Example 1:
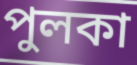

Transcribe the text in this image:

পুলকা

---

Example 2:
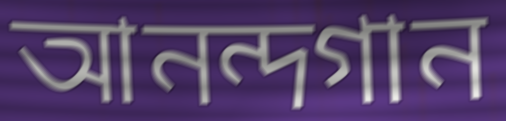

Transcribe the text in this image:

আনন্দগান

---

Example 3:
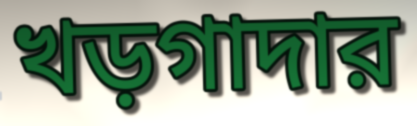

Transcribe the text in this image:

খড়গাদার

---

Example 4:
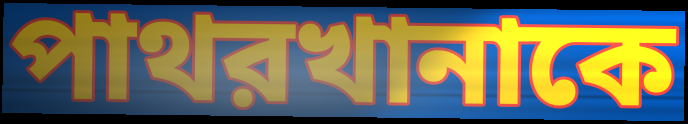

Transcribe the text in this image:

পাথরখানাকে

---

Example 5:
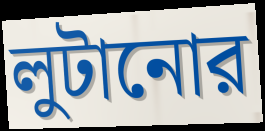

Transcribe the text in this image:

লুটানোর